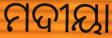
ମଦୀୟା